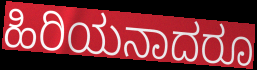
ಹಿರಿಯನಾದರೂ